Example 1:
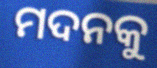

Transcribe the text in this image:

ମଦନକୁ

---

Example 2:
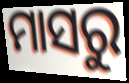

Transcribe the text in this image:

ମାସରୁ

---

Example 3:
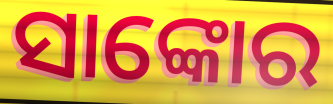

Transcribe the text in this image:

ସାଙ୍କୋର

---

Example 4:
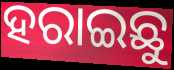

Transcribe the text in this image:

ହରାଇଛୁ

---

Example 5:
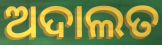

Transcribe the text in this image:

ଅଦାଲତ